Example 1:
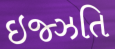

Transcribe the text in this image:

ઇજ્ઝતિ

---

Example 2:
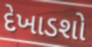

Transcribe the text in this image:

દેખાડશો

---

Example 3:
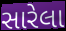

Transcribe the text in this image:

સારેલા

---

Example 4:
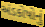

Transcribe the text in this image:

અંડકોષોનું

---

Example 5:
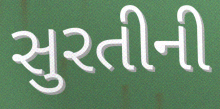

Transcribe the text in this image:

સુરતીની